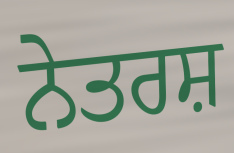
ਨੇਤਰਸ਼